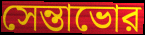
সেন্তাভোর